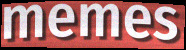
memes